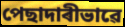
পেছাদাৰীভাৱে